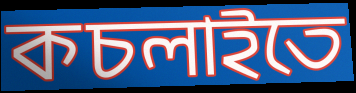
কচলাইতে